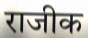
राजीक